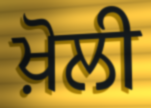
ਖ਼ੋਲੀ